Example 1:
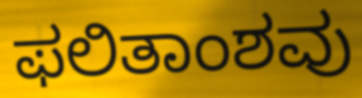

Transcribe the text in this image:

ಫಲಿತಾಂಶವು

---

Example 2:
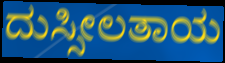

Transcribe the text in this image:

ದುಸ್ಸೀಲತಾಯ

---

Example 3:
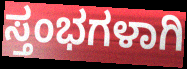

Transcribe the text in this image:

ಸ್ತಂಭಗಳಾಗಿ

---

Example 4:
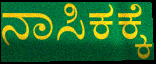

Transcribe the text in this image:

ನಾಸಿಕಕ್ಕೆ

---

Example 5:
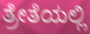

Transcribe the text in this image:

ತ್ರೇತೆಯಲ್ಲಿ